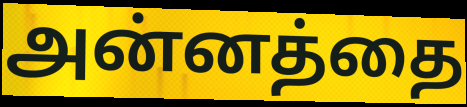
அன்னத்தை